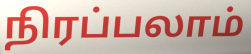
நிரப்பலாம்